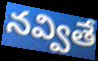
నవ్వితే